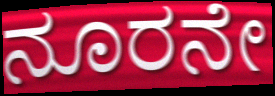
ನೂರನೇ